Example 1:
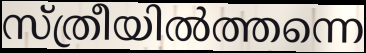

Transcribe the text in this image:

സ്ത്രീയിൽത്തന്നെ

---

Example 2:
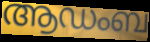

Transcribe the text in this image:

ആഡംബ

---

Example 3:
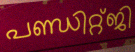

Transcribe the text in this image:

പണ്ഡിറ്റ്ജി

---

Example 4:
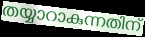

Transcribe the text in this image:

തയ്യാറാകുന്നതിന്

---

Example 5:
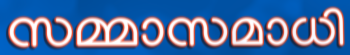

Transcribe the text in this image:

സമ്മാസമാധി